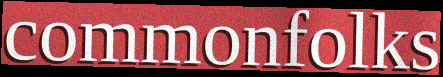
commonfolks